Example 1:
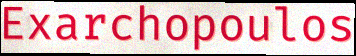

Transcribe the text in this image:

Exarchopoulos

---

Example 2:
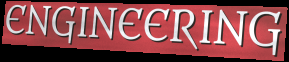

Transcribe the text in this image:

ENGINEERING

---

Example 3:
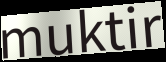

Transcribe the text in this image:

muktir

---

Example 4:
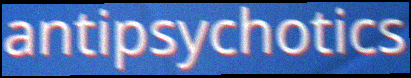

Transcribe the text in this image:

antipsychotics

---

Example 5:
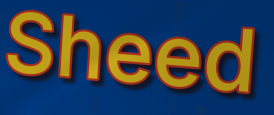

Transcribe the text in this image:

Sheed